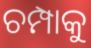
ଚମ୍ପାକୁ